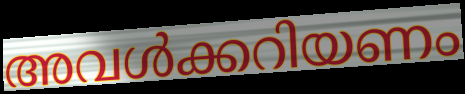
അവൾക്കറിയണം